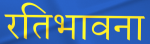
रतिभावना